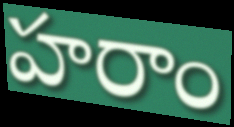
హరాం